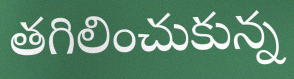
తగిలించుకున్న